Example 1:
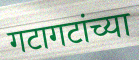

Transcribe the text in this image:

गटागटांच्या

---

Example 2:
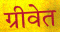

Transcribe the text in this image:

ग्रीवेत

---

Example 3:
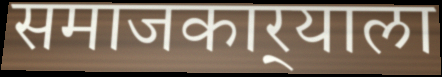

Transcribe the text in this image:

समाजकार्याला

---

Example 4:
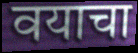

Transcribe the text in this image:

वयाचा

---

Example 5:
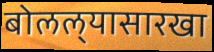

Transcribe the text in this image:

बोलल्यासारखा